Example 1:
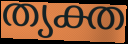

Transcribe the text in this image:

ത്യക്ത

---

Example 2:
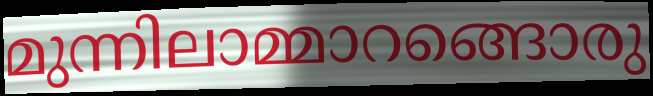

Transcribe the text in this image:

മുന്നിലാമ്മാറങ്ങൊരു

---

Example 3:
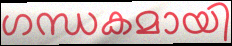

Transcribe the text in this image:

ഗന്ധകമായി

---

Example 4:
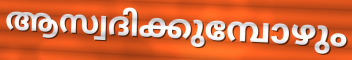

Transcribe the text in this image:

ആസ്വദിക്കുമ്പോഴും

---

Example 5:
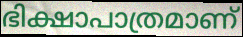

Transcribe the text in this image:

ഭിക്ഷാപാത്രമാണ്